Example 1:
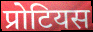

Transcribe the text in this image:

प्रोटियस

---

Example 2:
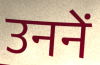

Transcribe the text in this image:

उननें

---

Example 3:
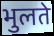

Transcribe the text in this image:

भुलते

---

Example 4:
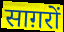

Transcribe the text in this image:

साग़रों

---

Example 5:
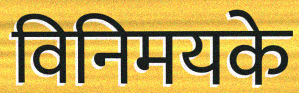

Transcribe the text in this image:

विनिमयके